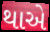
થાએ